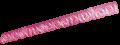
ബാഴ്സലോണയിലെ